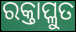
ରକ୍ତାପ୍ଳୁତ